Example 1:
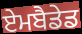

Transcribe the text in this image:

ਏਮਬੈਡੇਡ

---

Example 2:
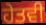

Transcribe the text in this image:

ਹੇਤਵੀ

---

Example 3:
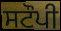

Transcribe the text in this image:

ਸਟੌਪੀ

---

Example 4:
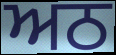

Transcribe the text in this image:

ਅਠ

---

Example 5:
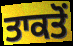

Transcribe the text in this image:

ਤਾਕਤੋਂ